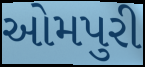
ઓમપુરી